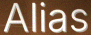
Alias